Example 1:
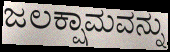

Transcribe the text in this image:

ಜಲಕ್ಷಾಮವನ್ನು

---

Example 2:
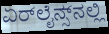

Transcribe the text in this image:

ಏರ್‌ಲೈನ್ಸ್‌ನಲ್ಲಿ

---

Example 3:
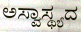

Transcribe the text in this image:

ಅಸ್ವಾಸ್ಥ್ಯದ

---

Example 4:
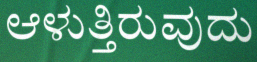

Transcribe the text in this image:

ಆಳುತ್ತಿರುವುದು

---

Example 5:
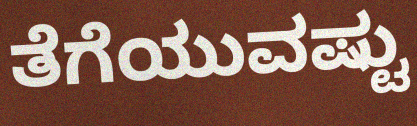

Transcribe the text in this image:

ತೆಗೆಯುವಷ್ಟು